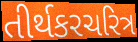
તીર્થકરચરિત્ર